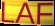
LAF